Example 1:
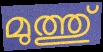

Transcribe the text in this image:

മുത്തു്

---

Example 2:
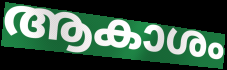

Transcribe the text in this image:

ആകാശം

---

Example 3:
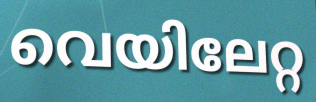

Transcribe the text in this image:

വെയിലേറ്റ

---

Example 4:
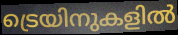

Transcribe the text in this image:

ട്രെയിനുകളിൽ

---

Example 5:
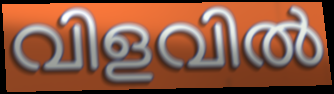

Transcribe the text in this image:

വിളവിൽ